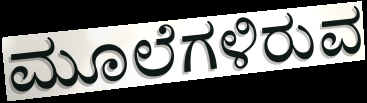
ಮೂಲೆಗಳಿರುವ